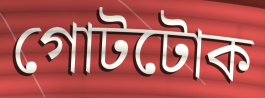
গোটটোক